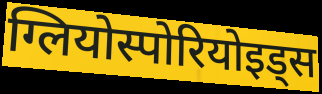
ग्लियोस्पोरियोइड्स